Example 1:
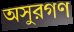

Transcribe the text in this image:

অসুরগণ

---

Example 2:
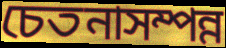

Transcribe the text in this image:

চেতনাসম্পন্ন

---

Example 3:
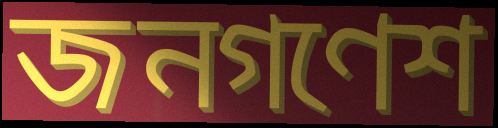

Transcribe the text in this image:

জনগণেশ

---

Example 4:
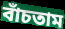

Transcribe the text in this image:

বাঁচতাম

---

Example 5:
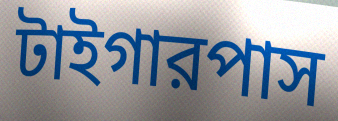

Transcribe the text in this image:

টাইগারপাস